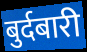
बुर्दबारी